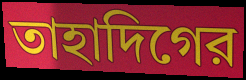
তাহাদিগের